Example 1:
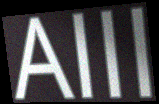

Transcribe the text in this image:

AIII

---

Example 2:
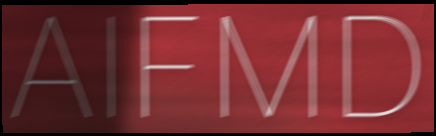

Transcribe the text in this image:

AIFMD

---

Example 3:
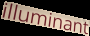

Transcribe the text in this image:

illuminant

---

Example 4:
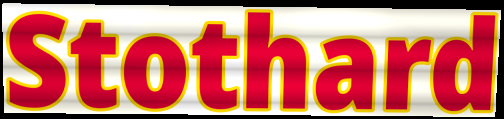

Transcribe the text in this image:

Stothard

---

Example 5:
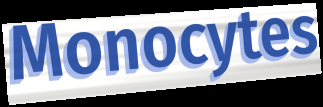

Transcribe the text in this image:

Monocytes